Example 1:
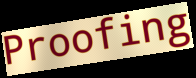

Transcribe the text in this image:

Proofing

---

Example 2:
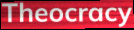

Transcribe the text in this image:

Theocracy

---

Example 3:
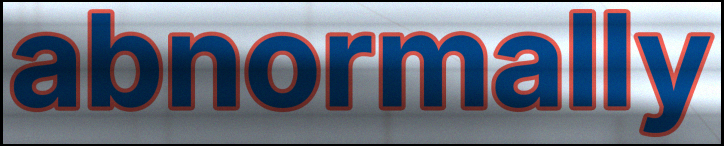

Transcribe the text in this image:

abnormally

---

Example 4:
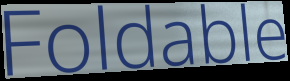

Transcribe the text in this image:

Foldable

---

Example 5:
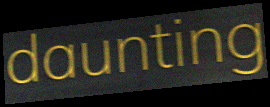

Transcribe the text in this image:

daunting